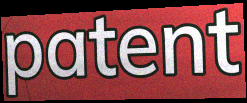
patent